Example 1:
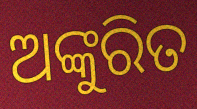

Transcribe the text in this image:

ଅଙ୍କୁରିତ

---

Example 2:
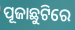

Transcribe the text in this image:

ପୂଜାଛୁଟିରେ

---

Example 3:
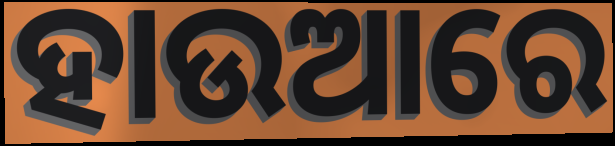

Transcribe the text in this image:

ହାଉଆରେ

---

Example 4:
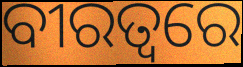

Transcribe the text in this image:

ବୀରତ୍ୱରେ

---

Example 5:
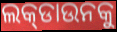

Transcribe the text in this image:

ଲକ୍‌ଡାଉନକୁ